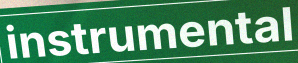
instrumental